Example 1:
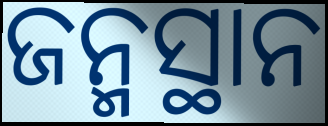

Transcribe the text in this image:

ଜନ୍ମସ୍ଥାନ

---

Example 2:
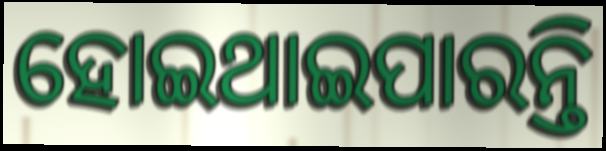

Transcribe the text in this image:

ହୋଇଥାଇପାରନ୍ତି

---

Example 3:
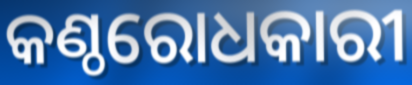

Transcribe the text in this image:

କଣ୍ଠରୋଧକାରୀ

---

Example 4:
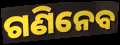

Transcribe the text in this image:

ଗଣିନେବ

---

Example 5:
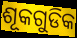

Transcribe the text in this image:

ଶୂକଗୁଡିକ